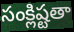
సంక్లిష్టతా